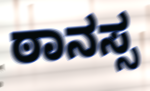
ಠಾನಸ್ಸ